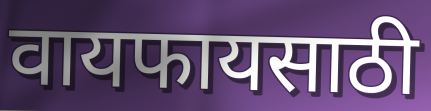
वायफायसाठी